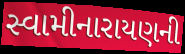
સ્વામીનારાયણની